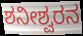
ಶನೀಶ್ವರನ